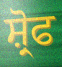
ਸ਼੍ਰੋਫ